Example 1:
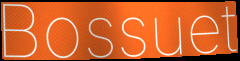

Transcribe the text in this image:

Bossuet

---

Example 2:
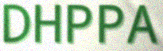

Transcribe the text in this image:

DHPPA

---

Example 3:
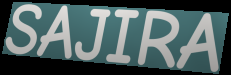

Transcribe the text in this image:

SAJIRA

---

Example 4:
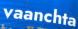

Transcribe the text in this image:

vaanchta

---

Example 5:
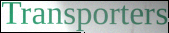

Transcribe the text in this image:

Transporters